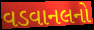
વડવાનલનો